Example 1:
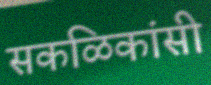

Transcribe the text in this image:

सकळिकांसी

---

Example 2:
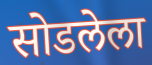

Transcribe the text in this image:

सोडलेला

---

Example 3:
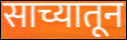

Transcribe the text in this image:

साच्यातून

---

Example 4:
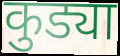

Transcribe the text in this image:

कुड्या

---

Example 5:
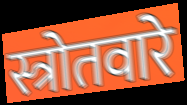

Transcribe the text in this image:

स्त्रोतवारे